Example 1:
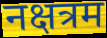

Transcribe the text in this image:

नक्षत्रम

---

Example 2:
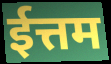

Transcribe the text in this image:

ईत्तम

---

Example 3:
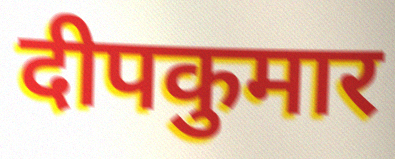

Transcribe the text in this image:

दीपकुमार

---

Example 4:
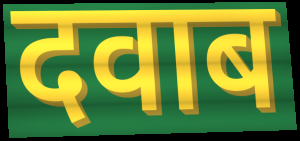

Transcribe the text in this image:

दवाब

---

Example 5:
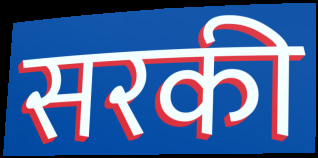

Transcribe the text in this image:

सरकी